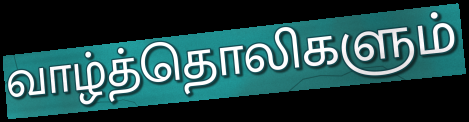
வாழ்த்தொலிகளும்